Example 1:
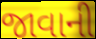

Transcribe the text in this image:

જાવાની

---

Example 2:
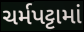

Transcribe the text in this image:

ચર્મપટ્ટામાં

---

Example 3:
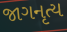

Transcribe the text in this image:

જાગનૃત્ય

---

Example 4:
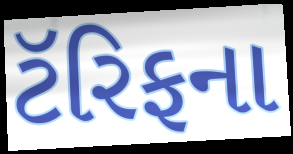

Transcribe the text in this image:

ટૅરિફના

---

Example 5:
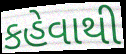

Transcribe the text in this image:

કહેવાથી